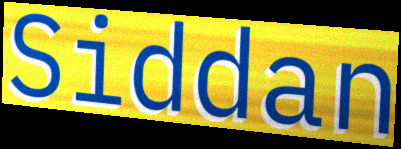
Siddan